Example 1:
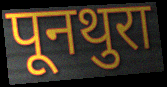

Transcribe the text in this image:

पूनथुरा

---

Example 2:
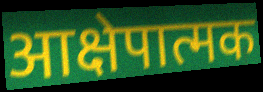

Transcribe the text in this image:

आक्षेपात्मक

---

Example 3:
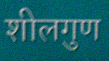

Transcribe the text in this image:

शीलगुण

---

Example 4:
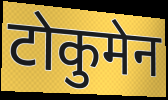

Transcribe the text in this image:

टोकुमेन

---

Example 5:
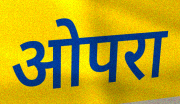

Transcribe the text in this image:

ओपरा